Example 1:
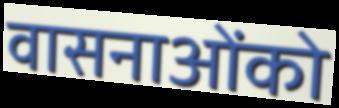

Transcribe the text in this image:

वासनाओंको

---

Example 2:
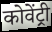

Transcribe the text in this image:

कोवेंट्री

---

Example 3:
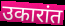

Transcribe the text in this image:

उकारांत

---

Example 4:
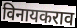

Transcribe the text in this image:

विनायकराव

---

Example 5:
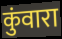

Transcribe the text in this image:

कुंवारा